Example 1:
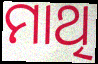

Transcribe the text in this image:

ମାଥି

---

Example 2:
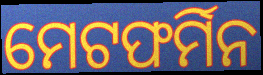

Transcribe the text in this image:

ମେଟଫର୍ମିନ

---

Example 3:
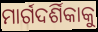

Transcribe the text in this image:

ମାର୍ଗଦର୍ଶିକାକୁ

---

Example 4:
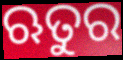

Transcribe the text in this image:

ଋତୁର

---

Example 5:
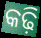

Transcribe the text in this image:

କଢ଼ି